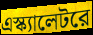
এস্ক্যালেটরে